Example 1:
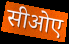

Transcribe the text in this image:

सीओए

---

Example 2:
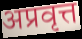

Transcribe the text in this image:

अप्रवृत्त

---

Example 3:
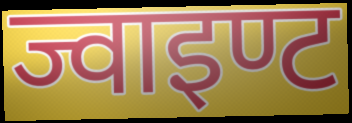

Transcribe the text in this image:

ज्वाइण्ट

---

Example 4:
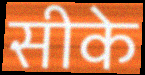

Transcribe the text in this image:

सीके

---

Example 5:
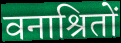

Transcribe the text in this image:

वनाश्रितों